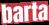
barta